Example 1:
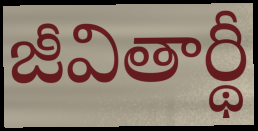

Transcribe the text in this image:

జీవితార్థీ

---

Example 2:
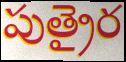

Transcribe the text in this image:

పుత్రైర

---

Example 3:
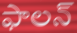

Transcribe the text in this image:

ఫాలన్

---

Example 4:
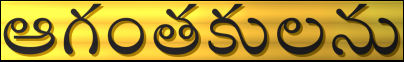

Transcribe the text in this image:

ఆగంతకులను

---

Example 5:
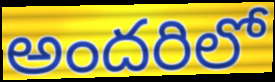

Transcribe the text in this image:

అందరిలో